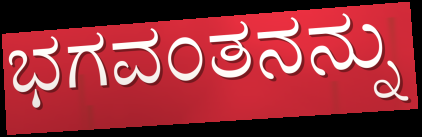
ಭಗವಂತನನ್ನು